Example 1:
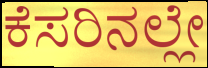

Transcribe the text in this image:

ಕೆಸರಿನಲ್ಲೇ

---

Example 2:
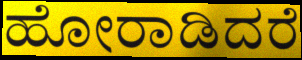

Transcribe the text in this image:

ಹೋರಾಡಿದರೆ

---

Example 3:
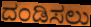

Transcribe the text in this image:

ದಂಡಿಸಲು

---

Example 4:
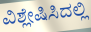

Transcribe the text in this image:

ವಿಶ್ಲೇಷಿಸಿದಲ್ಲಿ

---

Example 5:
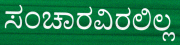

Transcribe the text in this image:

ಸಂಚಾರವಿರಲಿಲ್ಲ